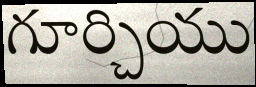
గూర్చియు